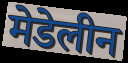
मेडेलीन